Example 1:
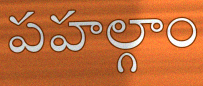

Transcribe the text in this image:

పహల్గాం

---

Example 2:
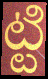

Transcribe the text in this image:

ట్టి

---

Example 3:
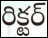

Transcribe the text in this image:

రిక్టర్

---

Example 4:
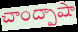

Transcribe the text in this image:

చాంద్పాషా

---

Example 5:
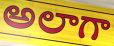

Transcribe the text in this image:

అలాగా